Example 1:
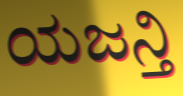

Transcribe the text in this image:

ಯಜನ್ತಿ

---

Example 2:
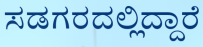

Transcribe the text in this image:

ಸಡಗರದಲ್ಲಿದ್ದಾರೆ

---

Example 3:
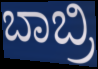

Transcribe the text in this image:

ಬಾಬ್ರಿ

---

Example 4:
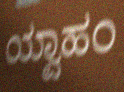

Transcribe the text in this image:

ಯ್ವಾಹಂ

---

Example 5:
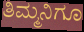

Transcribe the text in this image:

ತಿಮ್ಮನಿಗೂ